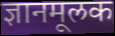
ज्ञानमूलक